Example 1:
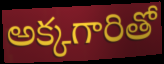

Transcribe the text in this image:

అక్కగారితో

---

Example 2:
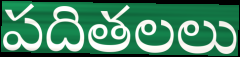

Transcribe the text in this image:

పదితలలు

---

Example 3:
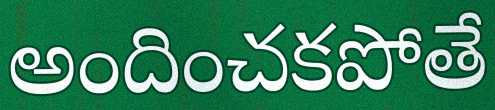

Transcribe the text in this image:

అందించకపోతే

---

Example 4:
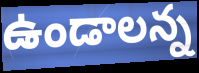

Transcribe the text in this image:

ఉండాలన్న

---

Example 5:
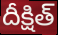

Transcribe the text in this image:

దీక్షిత్